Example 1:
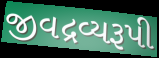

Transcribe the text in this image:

જીવદ્રવ્યરૂપી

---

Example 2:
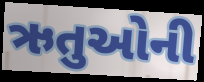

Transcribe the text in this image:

ઋતુઓની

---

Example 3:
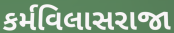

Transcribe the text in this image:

કર્મવિલાસરાજા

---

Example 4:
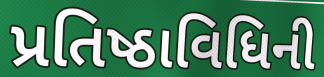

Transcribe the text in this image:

પ્રતિષ્ઠાવિધિની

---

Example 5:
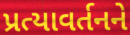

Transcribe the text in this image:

પ્રત્યાવર્તનને